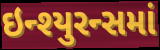
ઇન્શ્યુરન્સમાં